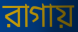
রাগায়